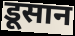
डूसान